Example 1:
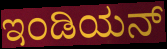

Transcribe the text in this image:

ಇಂಡಿಯನ್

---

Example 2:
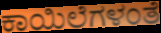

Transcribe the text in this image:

ಕಾಯಿಲೆಗಳಂತೆ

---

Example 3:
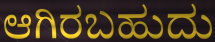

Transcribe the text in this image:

ಆಗಿರಬಹುದು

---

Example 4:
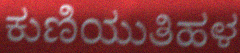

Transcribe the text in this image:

ಕುಣಿಯುತಿಹಳ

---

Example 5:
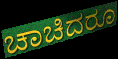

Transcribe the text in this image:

ಚಾಚಿದರೂ